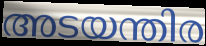
അടയന്തിര